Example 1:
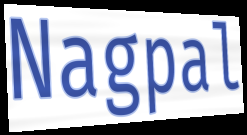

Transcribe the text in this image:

Nagpal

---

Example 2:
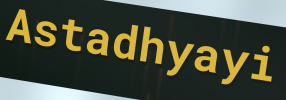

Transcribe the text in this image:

Astadhyayi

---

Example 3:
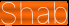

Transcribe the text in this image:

Shab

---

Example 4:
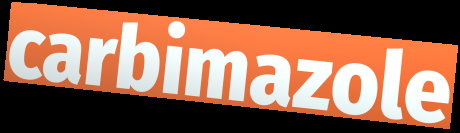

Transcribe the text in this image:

carbimazole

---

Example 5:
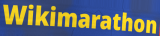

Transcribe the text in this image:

Wikimarathon